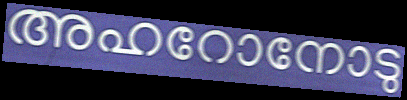
അഹറോനോടു